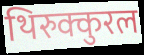
थिरुक्कुरल